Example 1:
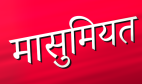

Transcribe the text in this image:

मासुमियत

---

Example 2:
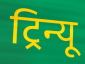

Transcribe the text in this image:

ट्रिन्यू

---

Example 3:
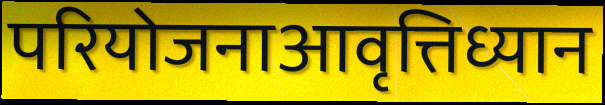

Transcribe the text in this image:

परियोजनाआवृत्तिध्यान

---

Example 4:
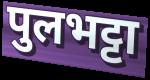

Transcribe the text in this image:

पुलभट्टा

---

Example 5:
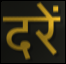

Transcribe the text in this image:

दरें